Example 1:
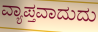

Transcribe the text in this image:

ವ್ಯಾಪ್ತವಾದುದು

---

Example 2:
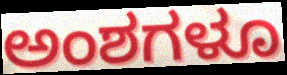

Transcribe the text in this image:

ಅಂಶಗಳೂ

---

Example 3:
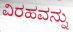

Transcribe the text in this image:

ವಿರಹವನ್ನು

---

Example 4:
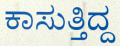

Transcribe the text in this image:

ಕಾಸುತ್ತಿದ್ದ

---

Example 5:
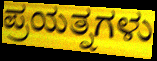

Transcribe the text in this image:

ಪ್ರಯತ್ನಗಳು